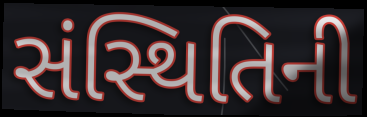
સંસ્થિતિની